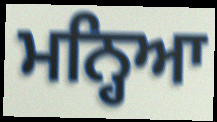
ਮਨ੍ਹਿਆ